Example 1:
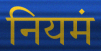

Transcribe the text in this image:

नियमं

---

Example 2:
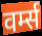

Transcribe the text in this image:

वर्म्स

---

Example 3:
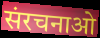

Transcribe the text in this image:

संरचनाओ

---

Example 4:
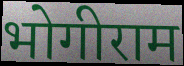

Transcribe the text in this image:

भोगीराम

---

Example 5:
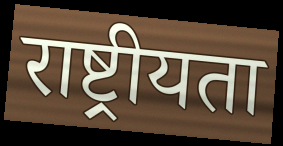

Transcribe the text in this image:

राष्ट्रीयता